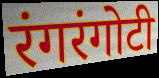
रंगरंगोटी